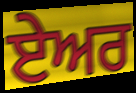
ਏੇਅਰ